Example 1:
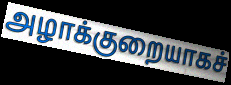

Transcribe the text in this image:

அழாக்குறையாகச்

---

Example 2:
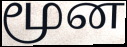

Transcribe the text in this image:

மூன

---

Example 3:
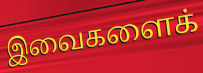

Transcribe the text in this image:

இவைகளைக்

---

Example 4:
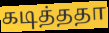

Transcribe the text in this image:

கடித்ததா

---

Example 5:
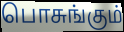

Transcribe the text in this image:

பொசுங்கும்